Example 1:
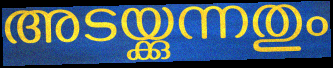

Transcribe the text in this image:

അടയ്ക്കുന്നതും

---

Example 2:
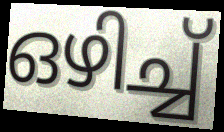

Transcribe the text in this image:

ഒഴിച്ച്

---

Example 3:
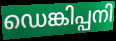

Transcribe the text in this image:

ഡെങ്കിപ്പനി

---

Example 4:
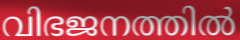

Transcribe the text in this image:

വിഭജനത്തിൽ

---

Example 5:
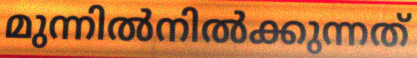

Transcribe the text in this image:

മുന്നിൽനിൽക്കുന്നത്